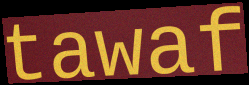
tawaf